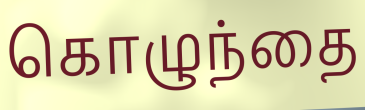
கொழுந்தை